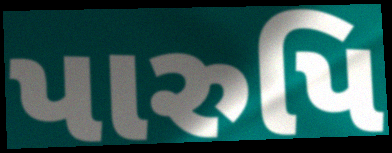
પારુપિ